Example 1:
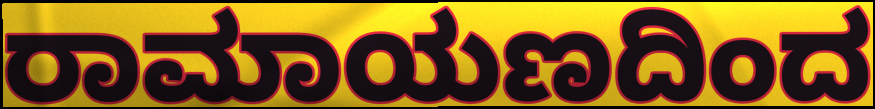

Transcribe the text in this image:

ರಾಮಾಯಣದಿಂದ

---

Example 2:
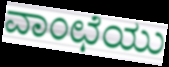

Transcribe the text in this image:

ವಾಂಛೆಯು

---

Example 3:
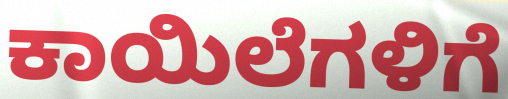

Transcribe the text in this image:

ಕಾಯಿಲೆಗಳಿಗೆ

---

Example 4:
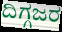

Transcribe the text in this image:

ದಿಗ್ಗಜರ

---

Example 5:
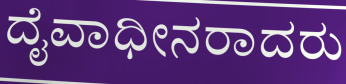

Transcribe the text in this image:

ದೈವಾಧೀನರಾದರು